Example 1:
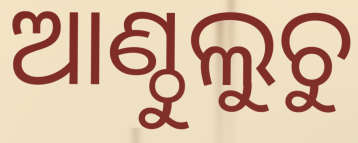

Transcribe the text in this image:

ଆଣ୍ଠୁଲୁଚୁ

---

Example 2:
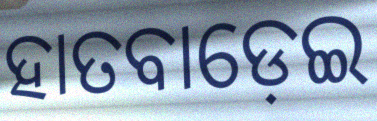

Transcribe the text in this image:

ହାତବାଡ଼େଇ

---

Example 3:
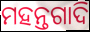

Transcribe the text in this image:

ମହନ୍ତଗାଦି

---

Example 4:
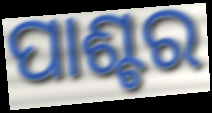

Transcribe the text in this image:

ପାଶ୍ଚର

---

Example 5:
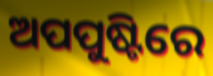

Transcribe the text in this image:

ଅପପୁଷ୍ଟିରେ